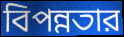
বিপন্নতার